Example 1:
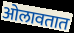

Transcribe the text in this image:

ओलावतात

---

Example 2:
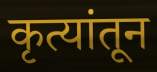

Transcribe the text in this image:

कृत्यांतून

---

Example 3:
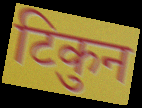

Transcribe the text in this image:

टिकुन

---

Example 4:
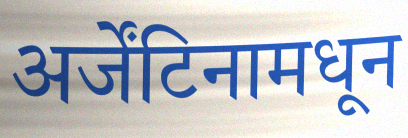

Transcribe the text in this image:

अर्जेंटिनामधून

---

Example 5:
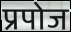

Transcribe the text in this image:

प्रपोज